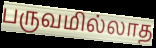
பருவமில்லாத